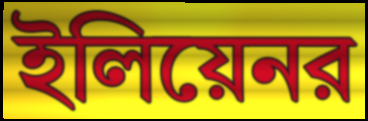
ইলিয়েনর